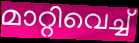
മാറ്റിവെച്ച്